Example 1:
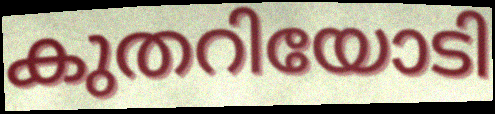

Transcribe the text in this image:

കുതറിയോടി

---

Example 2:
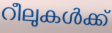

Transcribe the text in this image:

റീലുകൾക്ക്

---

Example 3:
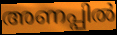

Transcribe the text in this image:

അണപ്പിൽ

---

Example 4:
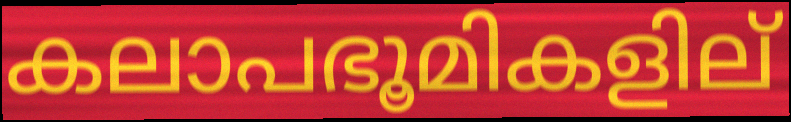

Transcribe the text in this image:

കലാപഭൂമികളില്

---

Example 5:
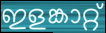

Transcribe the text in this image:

ഇളങ്കാറ്റ്